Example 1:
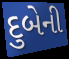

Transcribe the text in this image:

દુબેની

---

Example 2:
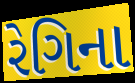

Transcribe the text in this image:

રેગિના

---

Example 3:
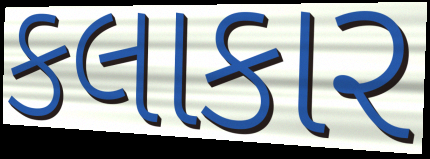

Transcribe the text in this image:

કલાકાર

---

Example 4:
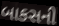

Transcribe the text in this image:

બાકસની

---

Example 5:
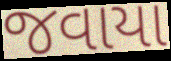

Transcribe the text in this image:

જવાયા